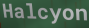
Halcyon